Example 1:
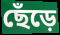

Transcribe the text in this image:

ছেঁড়ে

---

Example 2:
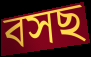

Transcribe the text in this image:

বসছ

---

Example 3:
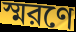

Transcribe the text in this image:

স্মরণে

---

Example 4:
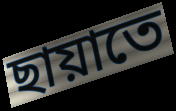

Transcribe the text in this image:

ছায়াতে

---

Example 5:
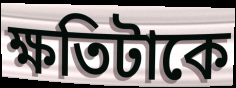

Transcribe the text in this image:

ক্ষতিটাকে